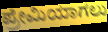
ಪ್ರೇಮಿಯಾಗಲು